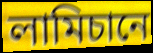
লামিচানে